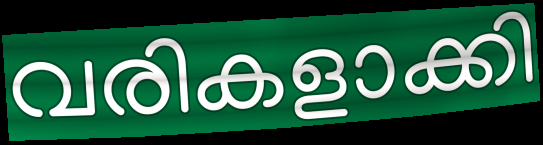
വരികളാക്കി